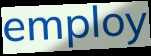
employ